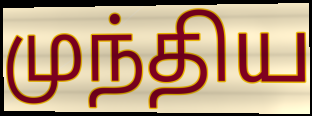
முந்திய